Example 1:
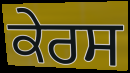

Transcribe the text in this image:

ਕੇਰਸ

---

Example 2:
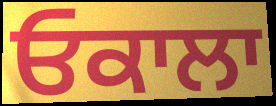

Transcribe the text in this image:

ਓਕਾਲਾ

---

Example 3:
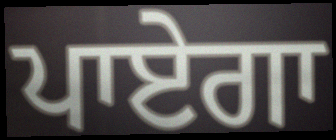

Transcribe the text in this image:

ਪਾਏਗਾ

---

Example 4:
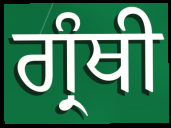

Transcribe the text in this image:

ਗ੍ਰੰਥੀ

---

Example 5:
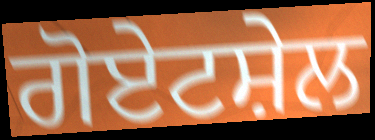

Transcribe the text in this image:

ਗੋਏਟਸ਼ੇਲ